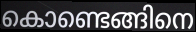
കൊണ്ടെങ്ങിനെ